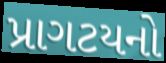
પ્રાગટયનો